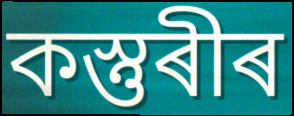
কস্তুৰীৰ